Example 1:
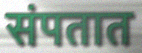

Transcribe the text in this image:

संपतात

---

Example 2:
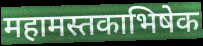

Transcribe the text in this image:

महामस्तकाभिषेक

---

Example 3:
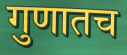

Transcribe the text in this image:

गुणातच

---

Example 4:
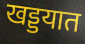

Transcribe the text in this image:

खड्डयात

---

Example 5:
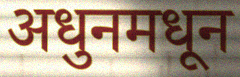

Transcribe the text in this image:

अधुनमधून